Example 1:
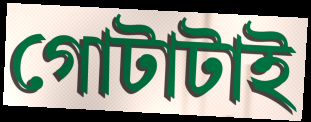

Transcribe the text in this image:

গোটাটাই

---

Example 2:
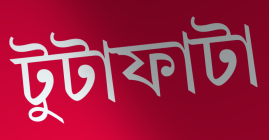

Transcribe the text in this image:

টুটাফাটা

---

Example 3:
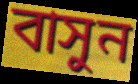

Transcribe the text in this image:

বাসুন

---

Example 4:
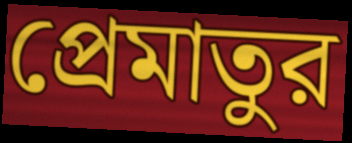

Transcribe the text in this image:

প্রেমাতুর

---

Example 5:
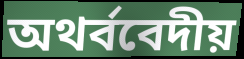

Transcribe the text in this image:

অথর্ববেদীয়